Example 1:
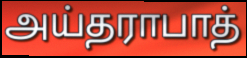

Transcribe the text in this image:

அய்தராபாத்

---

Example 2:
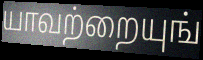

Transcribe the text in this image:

யாவற்றையுங்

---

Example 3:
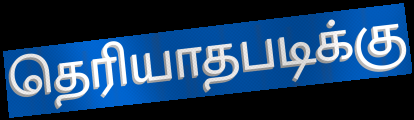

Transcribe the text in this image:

தெரியாதபடிக்கு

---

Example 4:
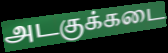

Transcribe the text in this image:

அடகுக்கடை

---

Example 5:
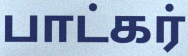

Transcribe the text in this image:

பாட்கர்